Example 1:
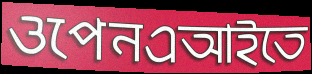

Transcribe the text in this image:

ওপেনএআইতে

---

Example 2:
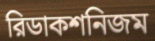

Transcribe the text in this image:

রিডাকশনিজম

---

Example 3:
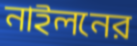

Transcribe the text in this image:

নাইলনের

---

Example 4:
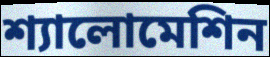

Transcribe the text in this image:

শ্যালোমেশিন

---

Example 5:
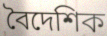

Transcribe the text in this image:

বৈদেশিক